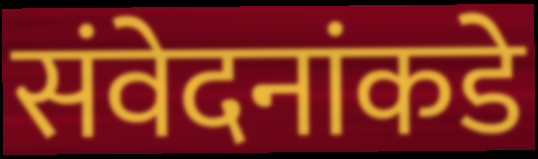
संवेदनांकडे